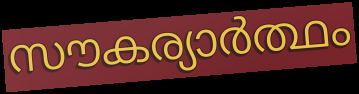
സൗകര്യാർത്ഥം